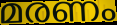
മരണം